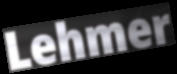
Lehmer